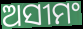
ଅସୀମଂ